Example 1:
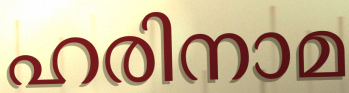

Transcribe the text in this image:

ഹരിനാമ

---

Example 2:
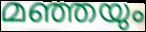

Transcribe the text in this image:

മഞ്ഞയും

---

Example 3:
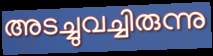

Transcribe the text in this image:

അടച്ചുവച്ചിരുന്നു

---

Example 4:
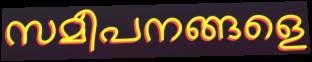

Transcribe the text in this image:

സമീപനങ്ങളെ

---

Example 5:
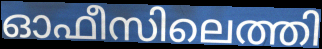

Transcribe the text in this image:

ഓഫീസിലെത്തി